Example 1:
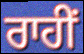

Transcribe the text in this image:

ਰਾਹੀਂ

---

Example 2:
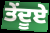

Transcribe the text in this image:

ਤੇਂਦੂਏ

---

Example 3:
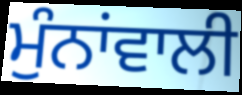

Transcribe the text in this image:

ਮੁੰਨਾਂਵਾਲੀ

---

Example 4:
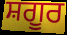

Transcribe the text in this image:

ਸ਼ਗੂਰ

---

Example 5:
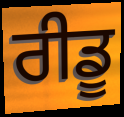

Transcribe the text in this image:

ਰੀਡੂ